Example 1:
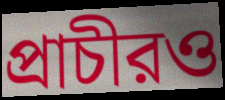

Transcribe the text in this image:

প্রাচীরও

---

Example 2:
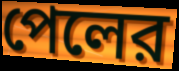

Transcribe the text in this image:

পেলের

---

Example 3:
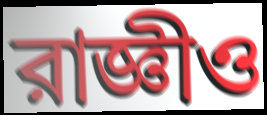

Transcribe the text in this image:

রাজ্ঞীও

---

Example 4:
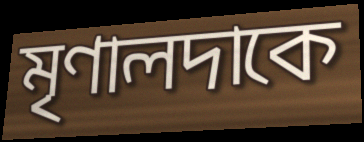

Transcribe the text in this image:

মৃণালদাকে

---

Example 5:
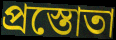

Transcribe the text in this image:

প্রস্তোতা